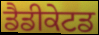
ਡੈਡੀਕੇਟਡ